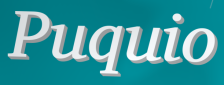
Puquio